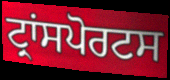
ਟ੍ਰਾਂਸਪੋਰਟਸ